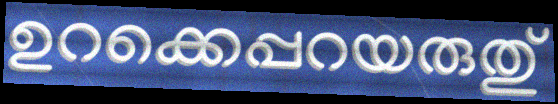
ഉറക്കെപ്പറയരുതു്